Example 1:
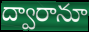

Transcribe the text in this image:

ద్వారానూ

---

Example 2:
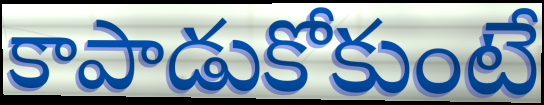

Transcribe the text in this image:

కాపాడుకోకుంటే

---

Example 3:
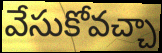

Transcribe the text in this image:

వేసుకోవచ్చా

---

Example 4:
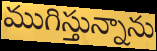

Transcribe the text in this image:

ముగిస్తున్నాను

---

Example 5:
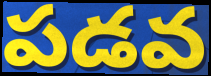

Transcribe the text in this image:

పడవ